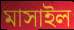
মাসাইল